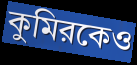
কুমিরকেও